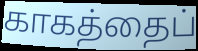
காகத்தைப்